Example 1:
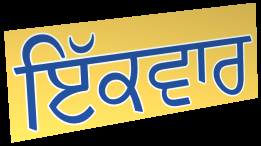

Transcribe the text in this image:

ਇੱਕਵਾਰ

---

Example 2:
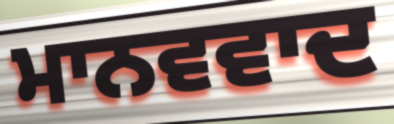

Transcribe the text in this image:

ਮਾਨਵਵਾਦ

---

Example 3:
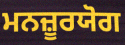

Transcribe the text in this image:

ਮਨਜ਼ੂਰਯੋਗ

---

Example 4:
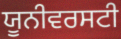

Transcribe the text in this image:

ਯੂਨੀਵਰਸਟੀ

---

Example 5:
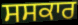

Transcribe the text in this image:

ਸਸਕਾਰ